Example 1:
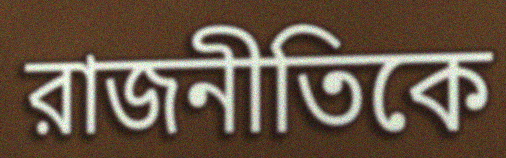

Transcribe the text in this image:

রাজনীতিকে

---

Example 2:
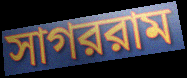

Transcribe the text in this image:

সাগররাম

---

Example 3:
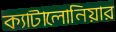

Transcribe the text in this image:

ক্যাটালোনিয়ার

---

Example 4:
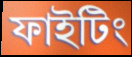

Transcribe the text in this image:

ফাইটিং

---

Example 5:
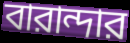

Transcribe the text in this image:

বারান্দার